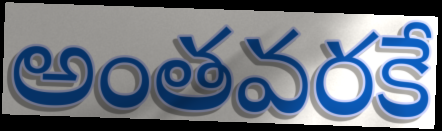
అంతవరకే